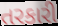
તરકારી